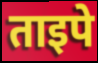
ताइपे